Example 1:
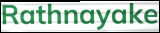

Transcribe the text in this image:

Rathnayake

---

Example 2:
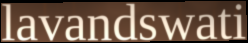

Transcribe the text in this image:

lavandswati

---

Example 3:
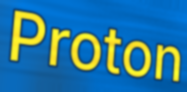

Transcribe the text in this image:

Proton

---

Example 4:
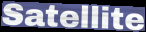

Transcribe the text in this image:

Satellite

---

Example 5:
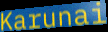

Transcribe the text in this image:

Karunai